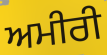
ਅਮੀਰੀ